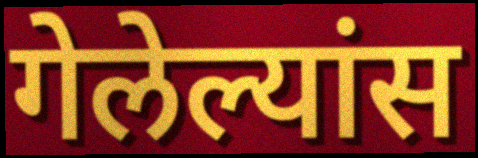
गेलेल्यांस